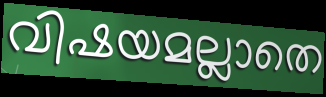
വിഷയമല്ലാതെ